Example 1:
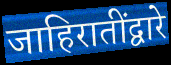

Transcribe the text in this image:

जाहिरातींद्वारे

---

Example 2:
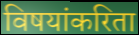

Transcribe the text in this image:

विषयांकरिता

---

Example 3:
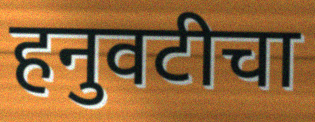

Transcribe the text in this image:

हनुवटीचा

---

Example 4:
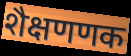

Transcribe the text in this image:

शैक्षणणक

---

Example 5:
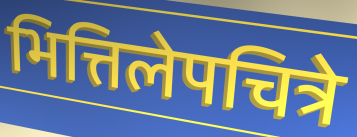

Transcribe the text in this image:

भित्तिलेपचित्रे